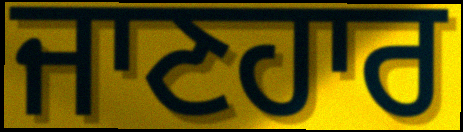
ਜਾਣਹਾਰ